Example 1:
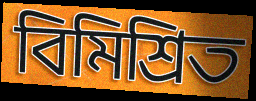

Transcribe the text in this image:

বিমিশ্রিত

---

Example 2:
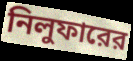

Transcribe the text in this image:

নিলুফারের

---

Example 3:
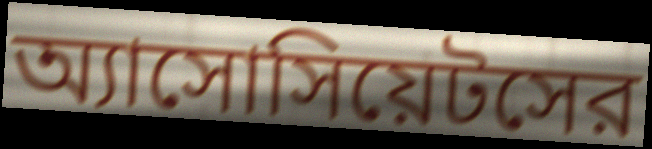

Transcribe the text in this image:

অ্যাসোসিয়েটসের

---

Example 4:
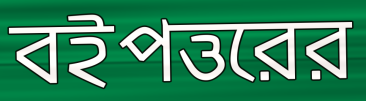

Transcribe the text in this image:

বইপত্তরের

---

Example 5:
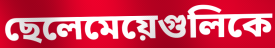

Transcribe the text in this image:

ছেলেমেয়েগুলিকে